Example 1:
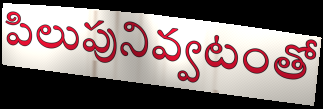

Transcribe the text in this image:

పిలుపునివ్వటంతో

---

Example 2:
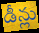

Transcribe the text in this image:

డీన్లు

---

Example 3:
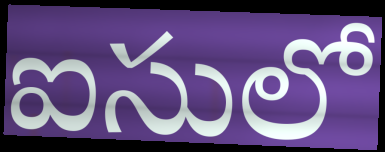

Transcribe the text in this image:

ఐసులో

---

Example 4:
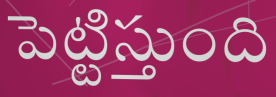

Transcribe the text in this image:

పెట్టిస్తుంది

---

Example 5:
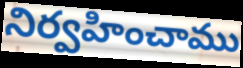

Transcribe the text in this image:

నిర్వహించాము